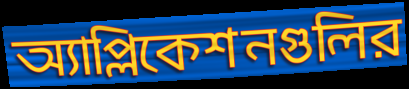
অ্যাপ্লিকেশনগুলির